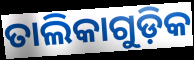
ତାଲିକାଗୁଡ଼ିକ